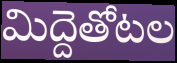
మిద్దెతోటల